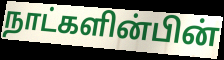
நாட்களின்பின்